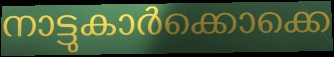
നാട്ടുകാർക്കൊക്കെ